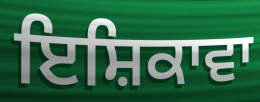
ਇਸ਼ਿਕਾਵਾ